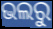
ଭଲରୁ